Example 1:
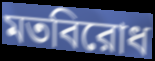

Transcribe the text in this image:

মতবিরোধ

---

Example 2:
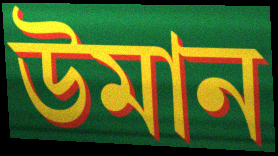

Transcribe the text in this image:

উমান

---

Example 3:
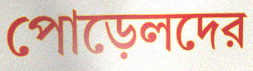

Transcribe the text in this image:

পোড়েলদের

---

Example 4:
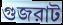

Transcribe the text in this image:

গুজরাট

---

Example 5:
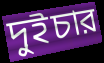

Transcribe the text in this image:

দুইচার